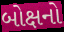
બોક્ષનો